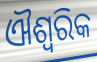
ଐଶ୍ବରିକ